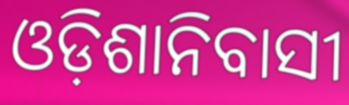
ଓଡ଼ିଶାନିବାସୀ